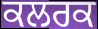
ਕਲਰਕ